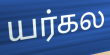
யர்கல